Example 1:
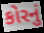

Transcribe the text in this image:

કોરનું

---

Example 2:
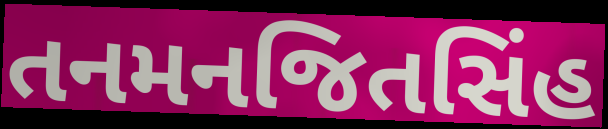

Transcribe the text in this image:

તનમનજિતસિંહ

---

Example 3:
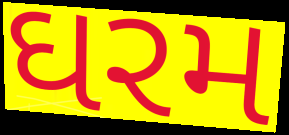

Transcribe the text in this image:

ઘરમ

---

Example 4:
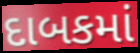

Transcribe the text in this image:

દાબકમાં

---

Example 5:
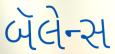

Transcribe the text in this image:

બૅલેન્સ